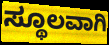
ಸ್ಥೂಲವಾಗಿ